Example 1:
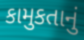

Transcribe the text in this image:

કામુકતાનું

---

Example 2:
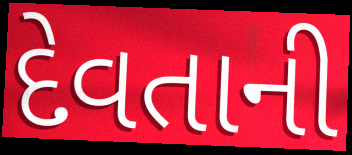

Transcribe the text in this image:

દેવતાની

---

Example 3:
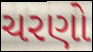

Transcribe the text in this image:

ચરણો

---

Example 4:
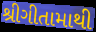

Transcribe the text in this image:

શ્રીગીતામાથી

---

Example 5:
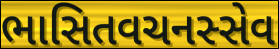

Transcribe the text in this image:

ભાસિતવચનસ્સેવ